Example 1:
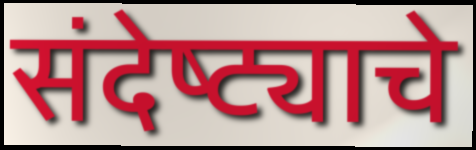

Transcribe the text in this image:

संदेष्ट्याचे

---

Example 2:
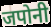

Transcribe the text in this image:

जपोनी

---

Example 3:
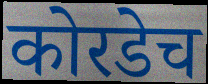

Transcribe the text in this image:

कोरडेच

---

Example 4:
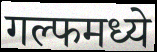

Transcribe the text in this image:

गल्फमध्ये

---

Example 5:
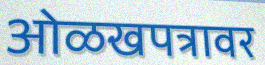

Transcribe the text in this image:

ओळखपत्रावर